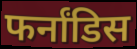
फर्नांडिस